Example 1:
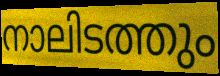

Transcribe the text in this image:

നാലിടത്തും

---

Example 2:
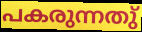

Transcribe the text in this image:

പകരുന്നതു്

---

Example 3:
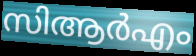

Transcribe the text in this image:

സിആർഎം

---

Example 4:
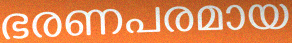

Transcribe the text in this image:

ഭരണപരമായ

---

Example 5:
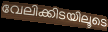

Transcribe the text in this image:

വേലിക്കിടയിലൂടെ